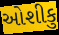
ઓશીકુ